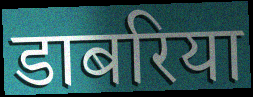
डाबरिया